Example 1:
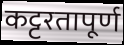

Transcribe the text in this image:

कट्टरतापूर्ण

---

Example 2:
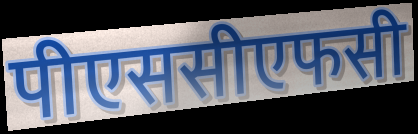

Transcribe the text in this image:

पीएससीएफसी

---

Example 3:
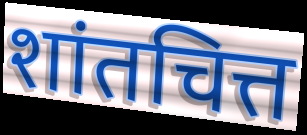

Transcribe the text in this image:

शांतचित्त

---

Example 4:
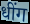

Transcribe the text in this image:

धींग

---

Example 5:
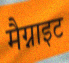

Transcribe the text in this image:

मैग्नाइट